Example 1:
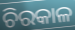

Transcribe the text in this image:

ଚିରକାଳ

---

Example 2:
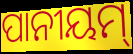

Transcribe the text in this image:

ପାନୀୟମ୍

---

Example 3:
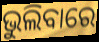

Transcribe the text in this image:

ଭୁଲିବାରେ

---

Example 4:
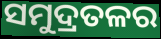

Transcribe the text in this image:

ସମୁଦ୍ରତଳର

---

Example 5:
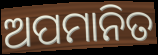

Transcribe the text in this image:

ଅପମାନିତ